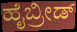
ಹೈಬ್ರೀಡ್